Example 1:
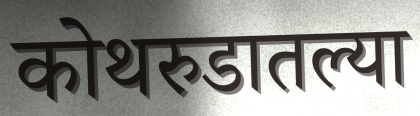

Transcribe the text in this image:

कोथरुडातल्या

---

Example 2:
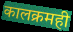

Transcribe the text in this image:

कालक्रमही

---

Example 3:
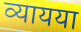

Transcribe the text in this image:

व्यायया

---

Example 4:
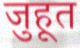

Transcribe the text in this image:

जुहूत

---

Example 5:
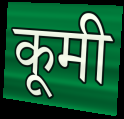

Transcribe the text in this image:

कूमी